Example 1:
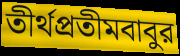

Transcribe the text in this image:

তীর্থপ্রতীমবাবুর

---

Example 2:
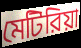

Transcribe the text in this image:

মেটিরিয়া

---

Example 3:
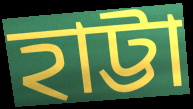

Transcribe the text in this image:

হাট্টা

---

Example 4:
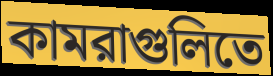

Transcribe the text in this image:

কামরাগুলিতে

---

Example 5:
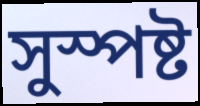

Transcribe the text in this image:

সুস্পষ্ট